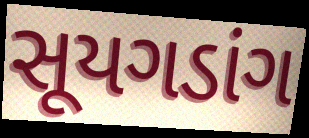
સૂયગડાંગ